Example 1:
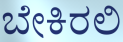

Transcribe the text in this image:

ಬೇಕಿರಲಿ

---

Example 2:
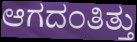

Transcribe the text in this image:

ಆಗದಂತಿತ್ತು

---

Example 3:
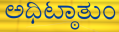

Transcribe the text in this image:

ಅಧಿಟ್ಠಾತುಂ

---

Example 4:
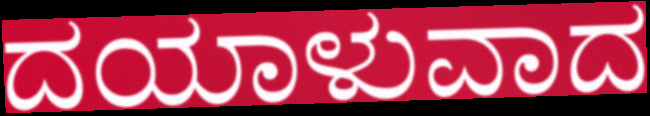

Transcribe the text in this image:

ದಯಾಳುವಾದ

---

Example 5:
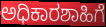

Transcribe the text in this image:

ಅಧಿಕಾರಶಾಹಿಗೆ